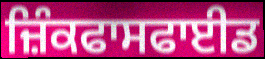
ਜ਼ਿੰਕਫਾਸਫਾਈਡ